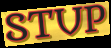
STUP